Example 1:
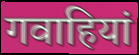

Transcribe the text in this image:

गवाहियां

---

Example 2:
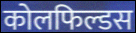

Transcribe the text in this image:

कोलफिल्डस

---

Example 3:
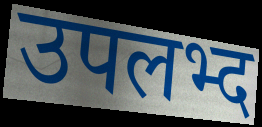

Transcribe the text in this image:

उपलभ्द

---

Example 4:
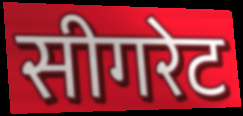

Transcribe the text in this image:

सीगरेट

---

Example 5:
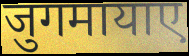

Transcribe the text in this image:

जुगमायाए